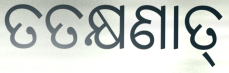
ତତକ୍ଷଣାତ୍